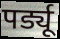
पर्ड्यू